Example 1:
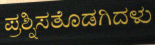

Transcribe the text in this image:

ಪ್ರಶ್ನಿಸತೊಡಗಿದಳು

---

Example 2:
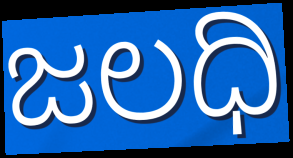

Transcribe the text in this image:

ಜಲಧಿ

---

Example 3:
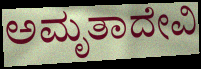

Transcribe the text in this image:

ಅಮೃತಾದೇವಿ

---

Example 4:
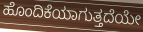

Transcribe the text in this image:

ಹೊಂದಿಕೆಯಾಗುತ್ತದೆಯೇ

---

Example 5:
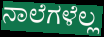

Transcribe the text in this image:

ನಾಲೆಗಳೆಲ್ಲ